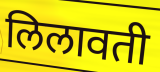
लिलावती